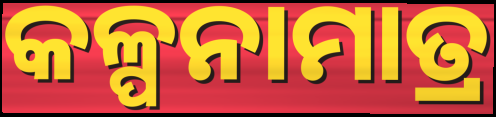
କଳ୍ପନାମାତ୍ର